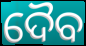
ଦୈବ